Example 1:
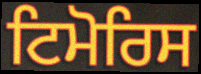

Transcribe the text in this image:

ਟਿਮੋਰਿਸ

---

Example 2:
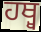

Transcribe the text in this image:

ਹਥ੍ਥ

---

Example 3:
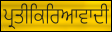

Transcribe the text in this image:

ਪ੍ਰਤੀਕਿਰਿਆਵਾਦੀ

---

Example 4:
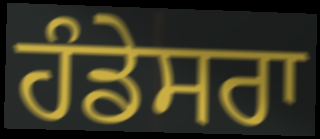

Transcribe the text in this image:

ਹੰਡੇਸਰਾ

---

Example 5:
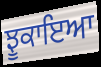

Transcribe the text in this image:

ਝੂਕਾਇਆ